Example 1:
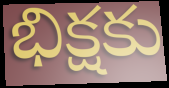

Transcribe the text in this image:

భిక్షకు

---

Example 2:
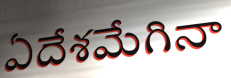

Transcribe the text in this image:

ఏదేశమేగినా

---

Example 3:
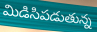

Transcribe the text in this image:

మిడిసిపడుతున్న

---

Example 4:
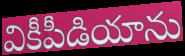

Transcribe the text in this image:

వికీపీడియాను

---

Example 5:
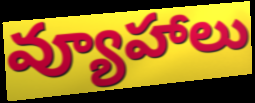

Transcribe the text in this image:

వ్యూహాలు